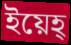
ইয়েহ্